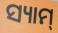
ସ୍ୟାମ୍